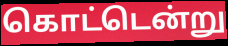
கொட்டென்று